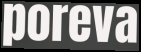
poreva